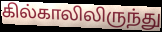
கில்காலிலிருந்து